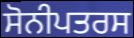
ਸੋਨੀਪਤਰਸ